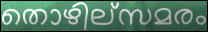
തൊഴില്സമരം